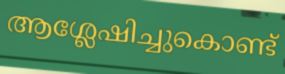
ആശ്ലേഷിച്ചുകൊണ്ട്